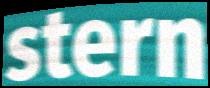
stern